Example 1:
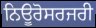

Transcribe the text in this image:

ਨਿਊਰੋਸਰਜਰੀ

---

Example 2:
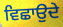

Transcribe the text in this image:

ਵਿਛਾਉਦੇ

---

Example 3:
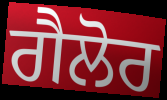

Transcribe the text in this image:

ਗੈਲੋਰ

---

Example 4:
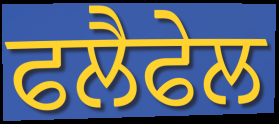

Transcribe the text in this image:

ਫਲੈਫੇਲ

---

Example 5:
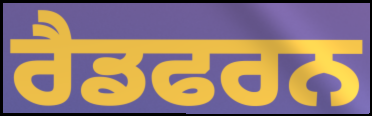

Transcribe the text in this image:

ਰੈਡਫਰਨ